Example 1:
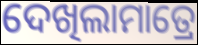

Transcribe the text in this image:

ଦେଖିଲାମାତ୍ରେ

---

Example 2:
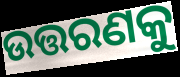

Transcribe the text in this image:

ଉତ୍ତରଣକୁ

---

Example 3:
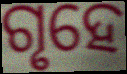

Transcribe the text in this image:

ଗୃହେ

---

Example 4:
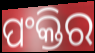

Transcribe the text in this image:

ପଂକ୍ତିର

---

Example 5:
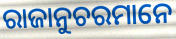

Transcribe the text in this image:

ରାଜାନୁଚରମାନେ